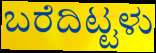
ಬರೆದಿಟ್ಟಳು